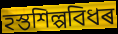
হস্তশিল্পবিধৰ